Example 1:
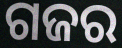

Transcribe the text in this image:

ଗଜର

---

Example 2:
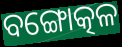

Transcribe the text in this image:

ବଙ୍ଗୋତ୍କଳ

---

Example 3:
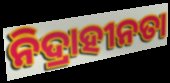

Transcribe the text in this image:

ନିଦ୍ରାହୀନତା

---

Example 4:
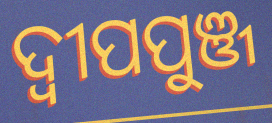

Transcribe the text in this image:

ଦ୍ୱୀପପୁଞ୍ଜ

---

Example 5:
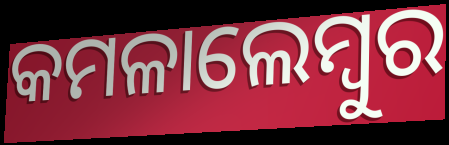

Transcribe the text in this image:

କମଳାଲେମ୍ବୁର